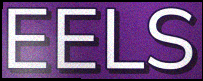
EELS